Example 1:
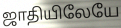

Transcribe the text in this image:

ஜாதியிலேயே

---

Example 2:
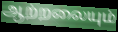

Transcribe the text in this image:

ஆற்றலையும்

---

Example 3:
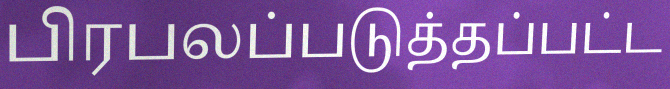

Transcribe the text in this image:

பிரபலப்படுத்தப்பட்ட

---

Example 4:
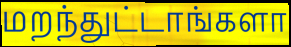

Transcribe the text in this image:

மறந்துட்டாங்களா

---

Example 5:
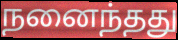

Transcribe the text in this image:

நனைந்தது